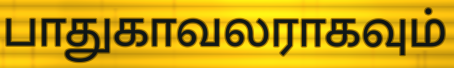
பாதுகாவலராகவும்